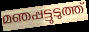
മഞപ്പട്ടുടുത്ത്